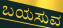
ಬಯಸುವ